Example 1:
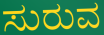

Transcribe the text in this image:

ಸುರುವ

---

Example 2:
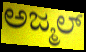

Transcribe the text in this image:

ಅಜ್ಮಲ್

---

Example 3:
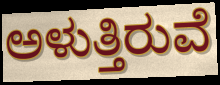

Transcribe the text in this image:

ಅಳುತ್ತಿರುವೆ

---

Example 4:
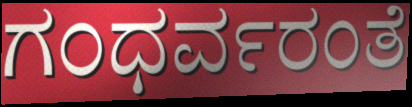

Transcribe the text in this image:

ಗಂಧರ್ವರಂತೆ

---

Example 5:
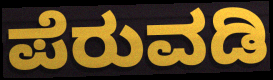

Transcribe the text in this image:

ಪೆರುವಡಿ